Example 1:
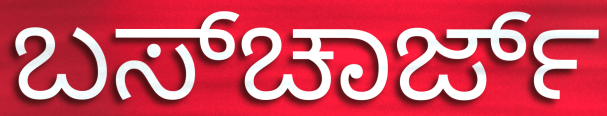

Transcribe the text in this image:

ಬಸ್‌ಚಾರ್ಜ್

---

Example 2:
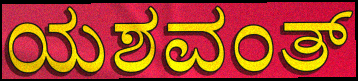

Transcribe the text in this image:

ಯಶವಂತ್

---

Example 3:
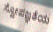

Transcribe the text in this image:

ಸ್ವೋಪಜ್ಞತೆಯ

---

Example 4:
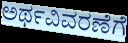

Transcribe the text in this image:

ಅರ್ಥವಿವರಣೆಗೆ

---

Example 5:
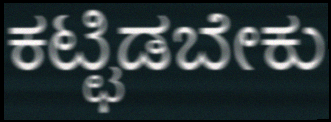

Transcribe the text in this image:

ಕಟ್ಟಿಡಬೇಕು